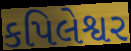
કપિલેશ્વર